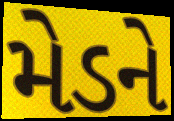
મેડને